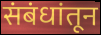
संबंधांतून